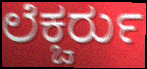
ಲೆಕ್ಚರ್ರು